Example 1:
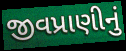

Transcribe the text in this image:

જીવપ્રાણીનું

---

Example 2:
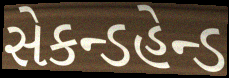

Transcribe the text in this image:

સેકન્ડહેન્ડ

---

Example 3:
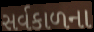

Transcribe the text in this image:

સર્વકાળના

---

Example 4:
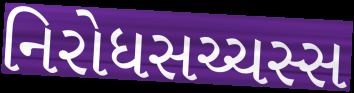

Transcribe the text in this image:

નિરોધસચ્ચસ્સ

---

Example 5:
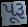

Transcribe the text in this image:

પૂરૂ